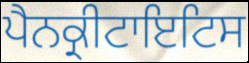
ਪੈਨਕ੍ਰੀਟਾਇਟਿਸ